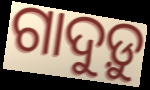
ଗାଦୁଡ଼ୁ